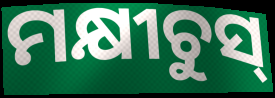
ମକ୍ଷୀଚୁସ୍